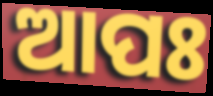
ଆପଃ